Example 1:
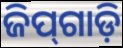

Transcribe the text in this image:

ଜିପ୍‌ଗାଡ଼ି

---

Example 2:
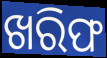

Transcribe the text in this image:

ଖରିଫ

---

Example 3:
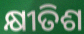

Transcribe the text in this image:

କ୍ଷୀତିଶ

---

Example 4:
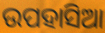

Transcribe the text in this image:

ଉପହାସିଆ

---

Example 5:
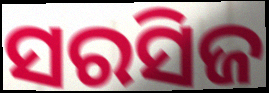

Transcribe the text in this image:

ସରସିଜ